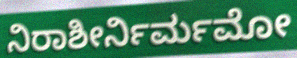
ನಿರಾಶೀರ್ನಿರ್ಮಮೋ